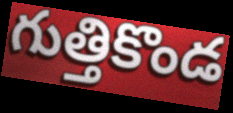
గుత్తికొండ